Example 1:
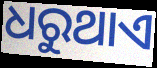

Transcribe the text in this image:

ଧରୁଥାଏ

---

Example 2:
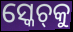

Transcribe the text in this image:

ସ୍କେଚ୍‌କୁ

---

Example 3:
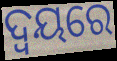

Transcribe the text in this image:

ଦ୍ୱୟରେ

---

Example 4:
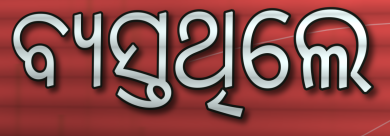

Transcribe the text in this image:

ବ୍ୟସ୍ତଥିଲେ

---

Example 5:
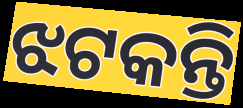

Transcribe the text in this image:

ଝଟକନ୍ତି